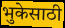
भुकेसाठी